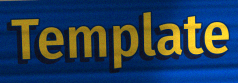
Template